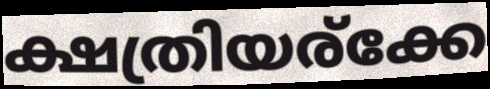
ക്ഷത്രിയര്ക്കേ